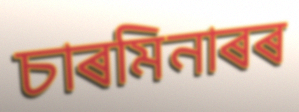
চাৰমিনাৰৰ